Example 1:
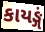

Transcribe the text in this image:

કાયઙ્ગં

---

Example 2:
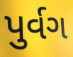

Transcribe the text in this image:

પુર્વગ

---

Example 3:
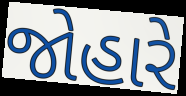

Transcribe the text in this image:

જોહારે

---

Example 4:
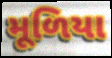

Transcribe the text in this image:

મૂળિયા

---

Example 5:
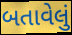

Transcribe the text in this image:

બતાવેલું